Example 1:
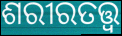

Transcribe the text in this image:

ଶରୀରତତ୍ତ୍ୱ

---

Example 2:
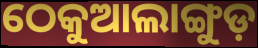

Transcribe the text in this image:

ଠେକୁଆଲାଙ୍ଗୁଡ଼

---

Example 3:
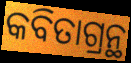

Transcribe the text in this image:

କବିତାଗ୍ରନ୍ଥ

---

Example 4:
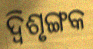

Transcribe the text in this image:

ଦ୍ବିଶୃଙ୍ଗକ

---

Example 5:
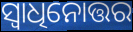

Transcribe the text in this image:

ସ୍ୱାଧିନୋତ୍ତର